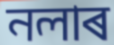
নলাৰ